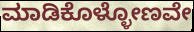
ಮಾಡಿಕೊಳ್ಳೋಣವೇ